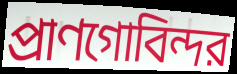
প্রাণগোবিন্দর